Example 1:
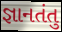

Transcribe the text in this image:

જ્ઞાનતંતુ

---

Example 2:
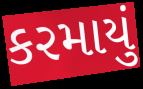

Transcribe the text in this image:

કરમાયું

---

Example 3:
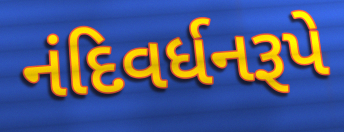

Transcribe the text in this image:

નંદિવર્ધનરૂપે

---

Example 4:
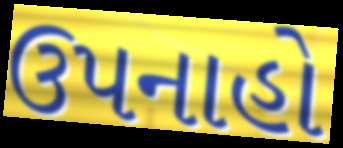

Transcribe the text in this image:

ઉપનાહો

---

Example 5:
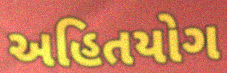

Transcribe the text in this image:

અહિતયોગ